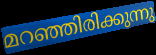
മറഞ്ഞിരിക്കുന്നു